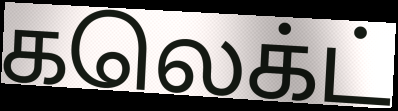
கலெக்ட்